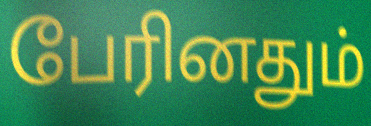
பேரினதும்